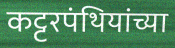
कट्टरपंथियांच्या